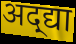
अद्द्या